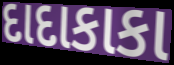
દાદાકાકા